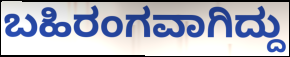
ಬಹಿರಂಗವಾಗಿದ್ದು